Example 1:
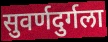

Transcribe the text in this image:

सुवर्णदुर्गला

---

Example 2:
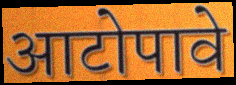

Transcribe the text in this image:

आटोपावे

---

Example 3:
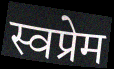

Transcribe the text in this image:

स्वप्रेम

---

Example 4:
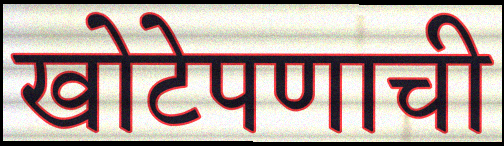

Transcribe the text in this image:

खोटेपणाची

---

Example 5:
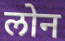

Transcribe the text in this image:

लोन